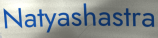
Natyashastra